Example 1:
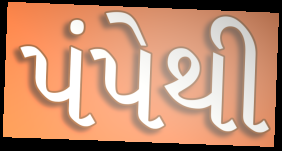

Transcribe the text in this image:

પંપેથી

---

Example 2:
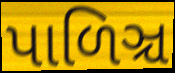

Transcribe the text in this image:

પાળિઞ્ચ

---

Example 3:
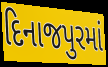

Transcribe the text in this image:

દિનાજપુરમાં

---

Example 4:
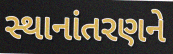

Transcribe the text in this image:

સ્થાનાંતરણને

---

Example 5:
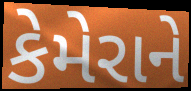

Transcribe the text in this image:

કેમેરાને